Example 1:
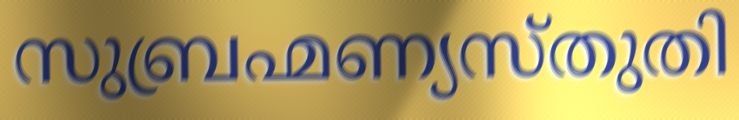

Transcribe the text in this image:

സുബ്രഹ്മണ്യസ്തുതി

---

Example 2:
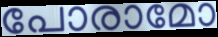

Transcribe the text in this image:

പോരാമോ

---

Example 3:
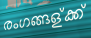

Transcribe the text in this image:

രംഗങ്ങള്ക്ക്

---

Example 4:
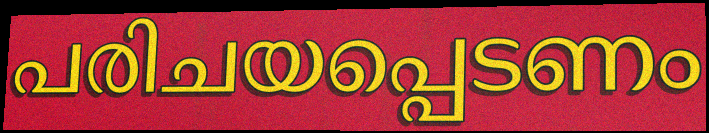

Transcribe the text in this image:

പരിചയപ്പെടണം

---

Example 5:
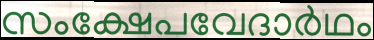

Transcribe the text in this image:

സംക്ഷേപവേദാർഥം